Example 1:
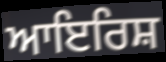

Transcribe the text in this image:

ਆਇਰਿਸ਼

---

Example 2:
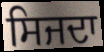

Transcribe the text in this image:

ਸਿਜਦਾ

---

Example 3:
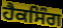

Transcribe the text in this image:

ਹੈਕਸਿੰਗ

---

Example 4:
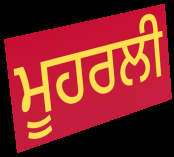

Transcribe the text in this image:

ਮੂਹਰਲੀ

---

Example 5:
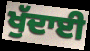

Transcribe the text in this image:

ਖੁੱਦਾਈ